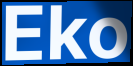
Eko